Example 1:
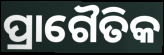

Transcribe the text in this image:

ପ୍ରାଗୈତିକ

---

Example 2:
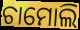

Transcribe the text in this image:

ଚାମୋଲି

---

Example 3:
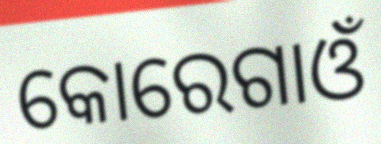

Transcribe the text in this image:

କୋରେଗାଓଁ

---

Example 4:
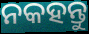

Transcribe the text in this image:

ନକହନ୍ତୁ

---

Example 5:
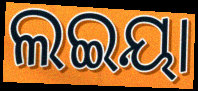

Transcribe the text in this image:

ଲଇୟା